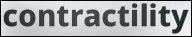
contractility